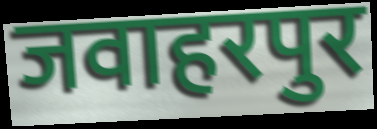
जवाहरपुर